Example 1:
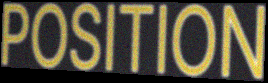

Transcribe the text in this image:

POSITION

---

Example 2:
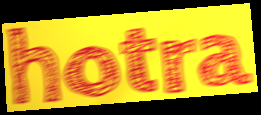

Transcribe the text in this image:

hotra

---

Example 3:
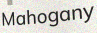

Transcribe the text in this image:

Mahogany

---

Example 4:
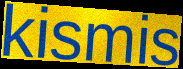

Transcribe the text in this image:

kismis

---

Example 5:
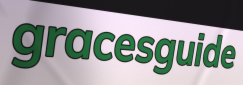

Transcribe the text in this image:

gracesguide